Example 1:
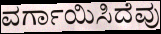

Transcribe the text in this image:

ವರ್ಗಾಯಿಸಿದೆವು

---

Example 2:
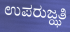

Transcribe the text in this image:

ಉಪರುಜ್ಝತಿ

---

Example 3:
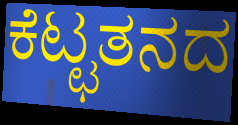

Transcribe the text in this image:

ಕೆಟ್ಟತನದ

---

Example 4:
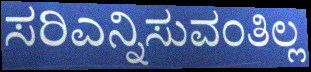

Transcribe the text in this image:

ಸರಿಎನ್ನಿಸುವಂತಿಲ್ಲ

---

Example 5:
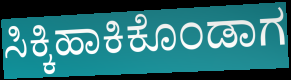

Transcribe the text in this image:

ಸಿಕ್ಕಿಹಾಕಿಕೊಂಡಾಗ